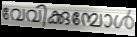
വേവിക്കുമ്പോൾ